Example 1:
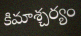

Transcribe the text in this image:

కిమాశ్చర్యం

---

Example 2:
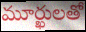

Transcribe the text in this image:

మూర్ఖులతో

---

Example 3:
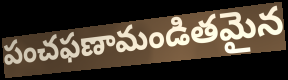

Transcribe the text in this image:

పంచఫణామండితమైన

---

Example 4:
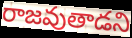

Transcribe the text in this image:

రాజవుతాడని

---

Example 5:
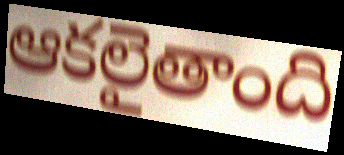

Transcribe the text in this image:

ఆకలైతాంది